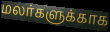
மலர்களுக்காக